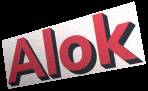
Alok